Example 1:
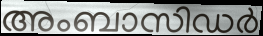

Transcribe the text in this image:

അംബാസിഡർ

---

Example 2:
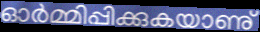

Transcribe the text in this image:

ഓർമ്മിപ്പിക്കുകയാണു്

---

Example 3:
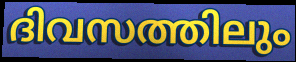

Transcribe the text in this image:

ദിവസത്തിലും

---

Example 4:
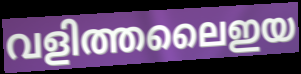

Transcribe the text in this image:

വളിത്തലൈഇയ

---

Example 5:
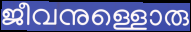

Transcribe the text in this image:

ജീവനുള്ളൊരു